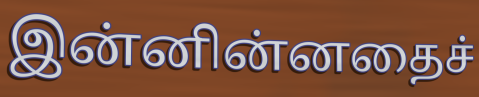
இன்னின்னதைச்